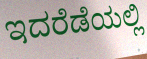
ಇದರೆಡೆಯಲ್ಲಿ